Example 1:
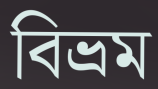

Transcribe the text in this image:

বিভ্রম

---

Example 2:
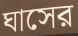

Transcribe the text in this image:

ঘাসের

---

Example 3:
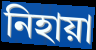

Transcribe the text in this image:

নিহায়া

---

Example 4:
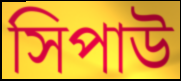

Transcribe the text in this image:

সিপাউ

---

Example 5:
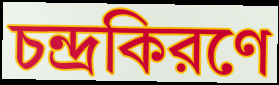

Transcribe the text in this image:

চন্দ্রকিরণে